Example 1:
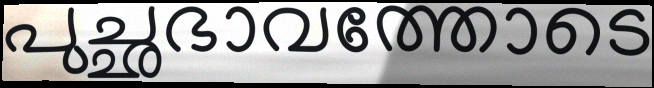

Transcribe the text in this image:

പുച്ഛഭാവത്തോടെ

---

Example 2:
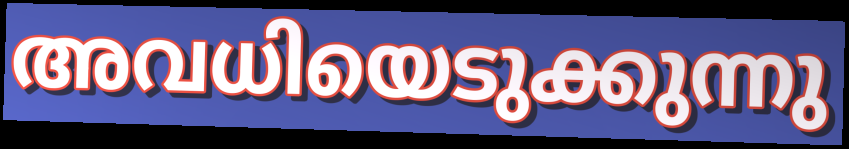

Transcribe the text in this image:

അവധിയെടുക്കുന്നു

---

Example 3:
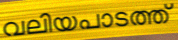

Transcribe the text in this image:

വലിയപാടത്ത്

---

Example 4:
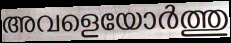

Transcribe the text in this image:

അവളെയോർത്തു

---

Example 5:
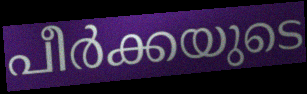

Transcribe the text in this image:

പീർക്കയുടെ